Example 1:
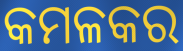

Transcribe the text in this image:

କମଳକର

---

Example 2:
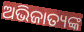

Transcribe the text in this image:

ଅଭିଜାତ୍ୟଙ୍କ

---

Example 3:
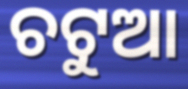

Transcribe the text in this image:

ଚଟୁଆ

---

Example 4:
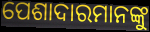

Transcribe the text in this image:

ପେଶାଦାରମାନଙ୍କୁ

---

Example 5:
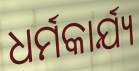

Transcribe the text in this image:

ଧର୍ମକାର୍ଯ୍ୟ